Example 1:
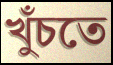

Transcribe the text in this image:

খুঁচতে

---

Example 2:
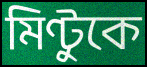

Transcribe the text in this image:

মিণ্টুকে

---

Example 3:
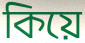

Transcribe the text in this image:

কিয়ে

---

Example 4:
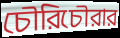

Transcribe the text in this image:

চৌরিচৌরার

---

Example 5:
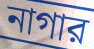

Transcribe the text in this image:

নাগার